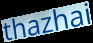
thazhai